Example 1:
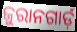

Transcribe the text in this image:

ଜୁରାନଗାର୍ଡ଼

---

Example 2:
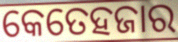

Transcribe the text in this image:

କେତେହଜାର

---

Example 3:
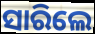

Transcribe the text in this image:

ସାରିଲେ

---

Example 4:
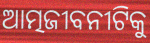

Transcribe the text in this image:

ଆତ୍ମଜୀବନୀଟିକୁ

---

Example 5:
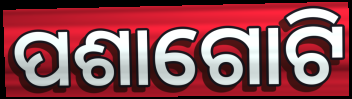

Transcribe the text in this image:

ପଶାଗୋଟି